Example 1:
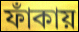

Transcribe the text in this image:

ফাঁকায়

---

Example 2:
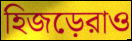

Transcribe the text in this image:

হিজড়েরাও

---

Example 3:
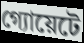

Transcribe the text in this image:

গ্যোয়েটে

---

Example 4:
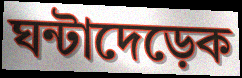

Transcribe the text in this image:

ঘন্টাদেড়েক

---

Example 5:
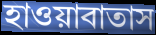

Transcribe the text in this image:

হাওয়াবাতাস